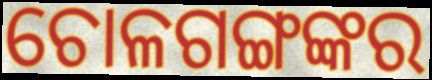
ଚୋଳଗଙ୍ଗଙ୍କର